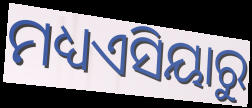
ମଧ୍ୟଏସିୟାରୁ